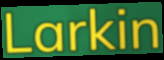
Larkin